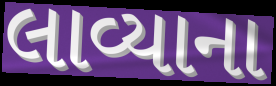
લાવ્યાના